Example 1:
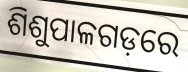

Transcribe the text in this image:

ଶିଶୁପାଳଗଡ଼ରେ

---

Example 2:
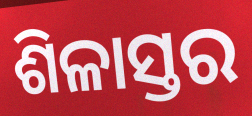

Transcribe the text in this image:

ଶିଳାସ୍ତର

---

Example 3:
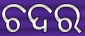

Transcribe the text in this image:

ଚଦର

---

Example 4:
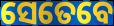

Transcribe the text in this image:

ସେତେବେ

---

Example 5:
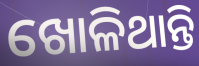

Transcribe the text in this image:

ଖୋଳିଥାନ୍ତି